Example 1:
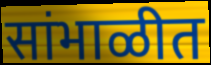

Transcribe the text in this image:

सांभाळीत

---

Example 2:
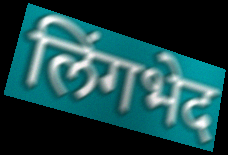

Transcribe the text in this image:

लिंगभेद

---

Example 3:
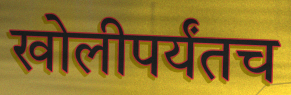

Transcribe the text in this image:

खोलीपर्यंतच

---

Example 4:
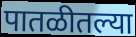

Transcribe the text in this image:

पातळीतल्या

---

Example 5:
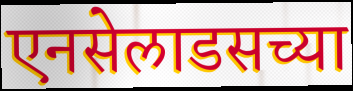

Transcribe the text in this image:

एनसेलाडसच्या